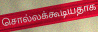
சொல்லக்கூடியதாக